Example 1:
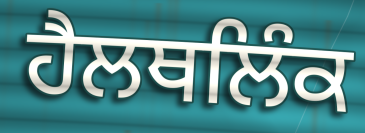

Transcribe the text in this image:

ਹੈਲਥਲਿੰਕ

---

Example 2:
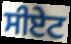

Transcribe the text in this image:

ਸੀਏਟ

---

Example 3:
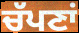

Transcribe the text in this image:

ਚੱਪਣਾਂ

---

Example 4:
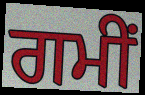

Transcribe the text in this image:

ਗਮੀਂ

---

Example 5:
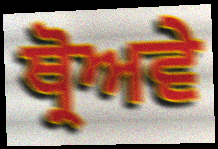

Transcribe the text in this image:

ਥ੍ਰੋਅਵੇ